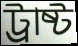
ট্রাষ্ট